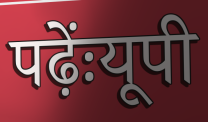
पढ़ेंःयूपी